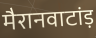
मैरानवाटांड़